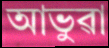
আভুৱা